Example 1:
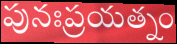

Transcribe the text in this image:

పునఃప్రయత్నం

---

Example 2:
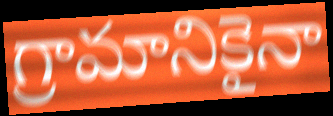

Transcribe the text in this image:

గ్రామానికైనా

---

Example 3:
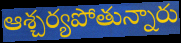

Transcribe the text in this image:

ఆశ్చర్యపోతున్నారు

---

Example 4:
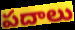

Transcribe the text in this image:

పదాలు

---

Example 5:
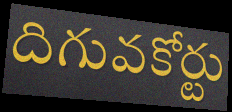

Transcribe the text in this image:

దిగువకోర్టు